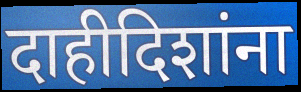
दाहीदिशांना